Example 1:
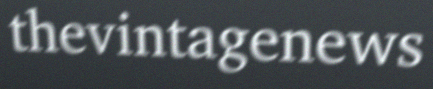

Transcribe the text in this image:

thevintagenews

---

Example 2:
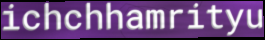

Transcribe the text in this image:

ichchhamrityu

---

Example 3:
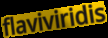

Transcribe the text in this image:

flaviviridis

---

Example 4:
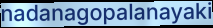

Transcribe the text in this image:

nadanagopalanayaki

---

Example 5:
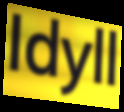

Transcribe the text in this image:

Idyll